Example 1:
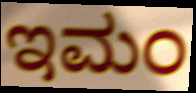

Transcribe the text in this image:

ಇಮಂ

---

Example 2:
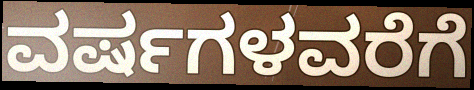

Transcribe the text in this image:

ವರ್ಷಗಳವರೆಗೆ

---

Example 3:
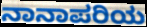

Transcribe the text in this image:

ನಾನಾಪರಿಯ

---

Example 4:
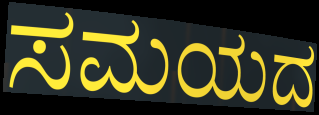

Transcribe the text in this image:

ಸಮಯದ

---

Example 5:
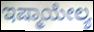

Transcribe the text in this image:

ಇಷ್ಮಾಯೇಲ್ಯ